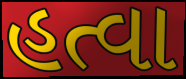
હત્વા